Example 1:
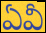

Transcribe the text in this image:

ఏవీ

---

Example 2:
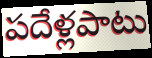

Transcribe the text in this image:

పదేళ్లపాటు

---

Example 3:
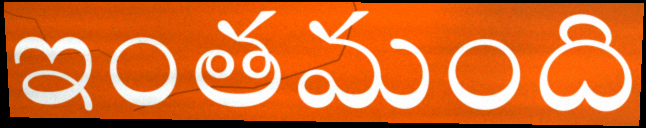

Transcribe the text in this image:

ఇంతమంది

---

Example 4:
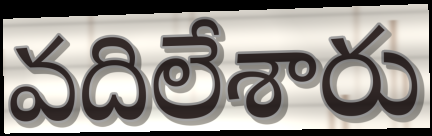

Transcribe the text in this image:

వదిలేశారు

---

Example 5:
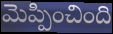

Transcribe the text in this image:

మెప్పించింది